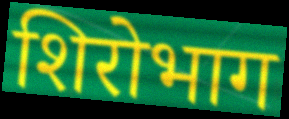
शिरोभाग